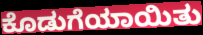
ಕೊಡುಗೆಯಾಯಿತು